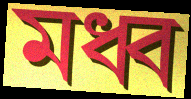
মধ্ব